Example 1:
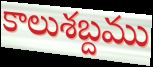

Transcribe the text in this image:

కాలుశబ్దము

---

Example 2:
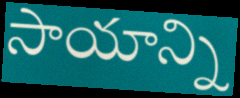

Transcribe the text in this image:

సాయాన్ని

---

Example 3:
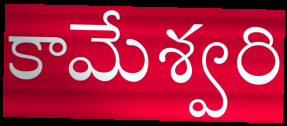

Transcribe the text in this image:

కామేశ్వరి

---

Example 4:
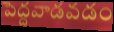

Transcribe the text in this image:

పెద్దవాడవడం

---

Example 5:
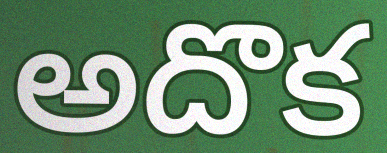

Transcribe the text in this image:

అదొక